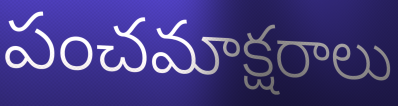
పంచమాక్షరాలు